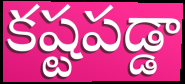
కష్టపడ్డా